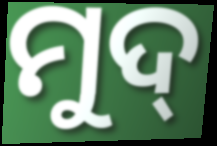
ମୁଦ୍